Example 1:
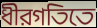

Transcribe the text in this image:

ধীরগতিতে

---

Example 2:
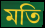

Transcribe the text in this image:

মতি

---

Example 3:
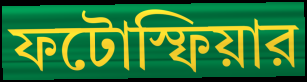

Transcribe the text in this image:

ফটোস্ফিয়ার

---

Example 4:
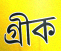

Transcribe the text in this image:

গ্রীক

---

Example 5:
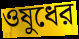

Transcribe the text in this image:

ওষুধের